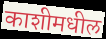
काशीमधील